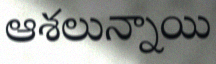
ఆశలున్నాయి